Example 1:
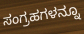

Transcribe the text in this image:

ಸಂಗ್ರಹಗಳನ್ನೂ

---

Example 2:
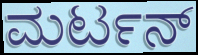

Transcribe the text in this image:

ಮರ್ಟನ್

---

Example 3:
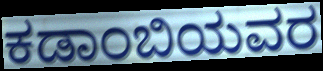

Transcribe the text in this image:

ಕಡಾಂಬಿಯವರ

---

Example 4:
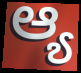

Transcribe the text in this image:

ಆ್ಯ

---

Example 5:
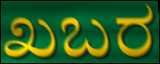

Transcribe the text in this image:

ಖಬರ